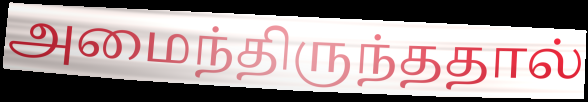
அமைந்திருந்ததால்